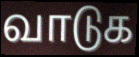
வாடுக